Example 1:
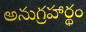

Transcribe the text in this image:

అనుగ్రహార్థం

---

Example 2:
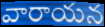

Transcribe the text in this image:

వారాయన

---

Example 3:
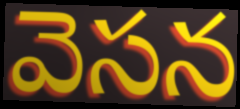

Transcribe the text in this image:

వెసన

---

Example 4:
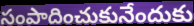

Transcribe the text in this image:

సంపాదించుకునేందుకు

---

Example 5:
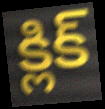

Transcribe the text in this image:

క్లిక్